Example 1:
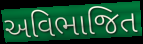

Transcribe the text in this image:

અવિભાજિત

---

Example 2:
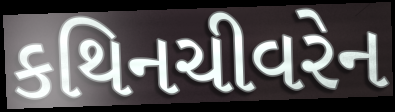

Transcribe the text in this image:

કથિનચીવરેન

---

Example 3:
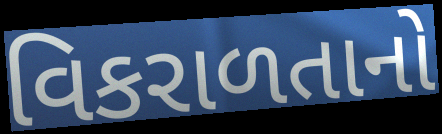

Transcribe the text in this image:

વિકરાળતાનો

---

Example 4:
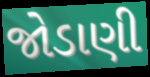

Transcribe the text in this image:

જોડાણી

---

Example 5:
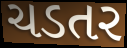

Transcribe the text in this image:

ચડતર